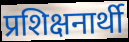
प्रशिक्षनार्थी